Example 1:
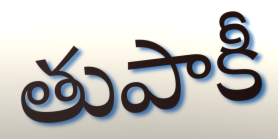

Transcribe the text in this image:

తుపాకీ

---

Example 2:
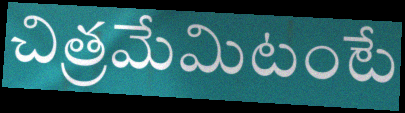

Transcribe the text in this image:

చిత్రమేమిటంటే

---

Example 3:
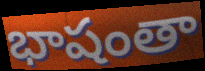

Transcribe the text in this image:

భాషంతా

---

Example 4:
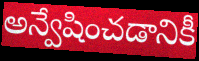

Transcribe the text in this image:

అన్వేషించడానికీ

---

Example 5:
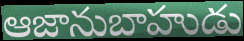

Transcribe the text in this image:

ఆజానుబాహుడు